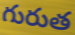
గురుత